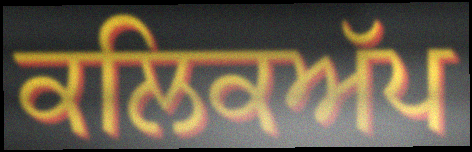
ਕਲਿਕਅੱਪ